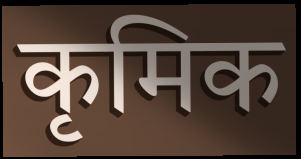
कृमिक